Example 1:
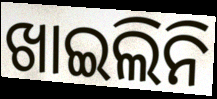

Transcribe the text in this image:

ଖାଇଲିନି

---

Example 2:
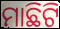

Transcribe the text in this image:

ମାଛିଟି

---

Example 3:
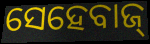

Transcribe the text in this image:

ସେହେବାଜ୍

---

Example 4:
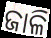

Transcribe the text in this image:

ଜାଳି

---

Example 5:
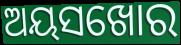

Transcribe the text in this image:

ଅୟସଖୋର